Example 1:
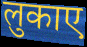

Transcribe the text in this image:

लुकाए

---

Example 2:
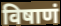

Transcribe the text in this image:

विषाणं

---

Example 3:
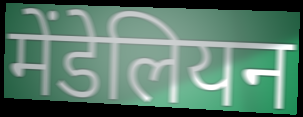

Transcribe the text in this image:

मेंडेलियन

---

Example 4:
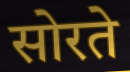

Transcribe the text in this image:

सोरते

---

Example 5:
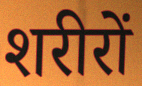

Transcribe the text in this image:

शरीरों